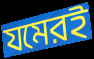
যমেরই